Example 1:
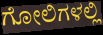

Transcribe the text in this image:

ಗೋಲಿಗಳಲ್ಲಿ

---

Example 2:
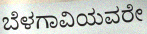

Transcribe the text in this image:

ಬೆಳಗಾವಿಯವರೇ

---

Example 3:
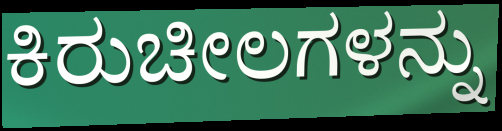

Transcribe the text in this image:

ಕಿರುಚೀಲಗಳನ್ನು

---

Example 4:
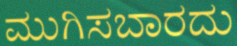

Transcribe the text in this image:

ಮುಗಿಸಬಾರದು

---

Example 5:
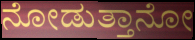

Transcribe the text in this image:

ನೋಡುತ್ತಾನೋ